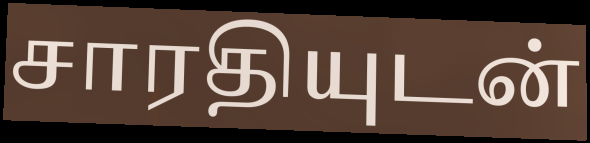
சாரதியுடன்